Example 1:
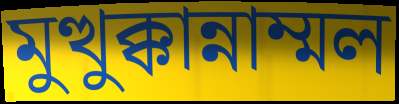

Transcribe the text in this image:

মুত্থুক্কান্নাম্মল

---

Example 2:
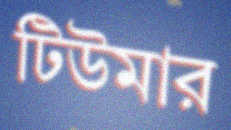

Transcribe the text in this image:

টিউমার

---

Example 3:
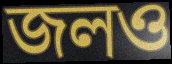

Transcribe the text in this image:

জলও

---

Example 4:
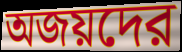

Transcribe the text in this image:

অজয়দের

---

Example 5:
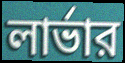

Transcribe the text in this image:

লার্ভার